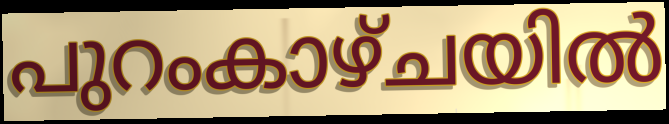
പുറംകാഴ്ചയിൽ